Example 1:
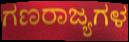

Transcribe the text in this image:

ಗಣರಾಜ್ಯಗಳ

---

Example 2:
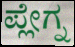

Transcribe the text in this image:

ಪ್ಲೇಗ್ನ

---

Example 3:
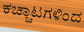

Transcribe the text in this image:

ಕಚ್ಚಾಟಗಳಿಂದ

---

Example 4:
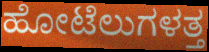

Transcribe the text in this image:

ಹೋಟೆಲುಗಳತ್ತ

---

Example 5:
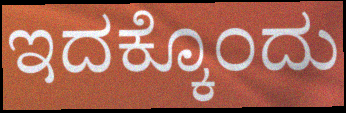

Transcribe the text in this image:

ಇದಕ್ಕೊಂದು